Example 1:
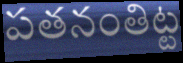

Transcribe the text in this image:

పతనంతిట్ట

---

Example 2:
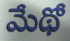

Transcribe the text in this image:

మేథో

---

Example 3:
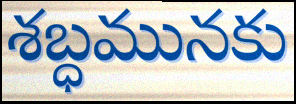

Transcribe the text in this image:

శబ్ధమునకు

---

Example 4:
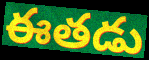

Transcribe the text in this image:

ఈతడు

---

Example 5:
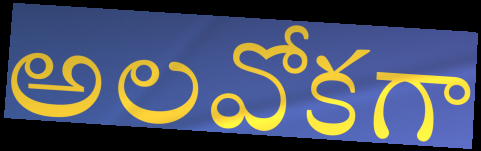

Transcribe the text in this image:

అలవోకగా